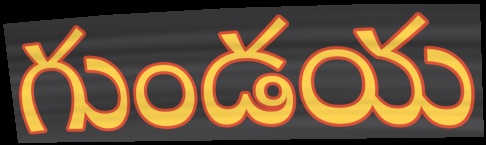
గుండయ